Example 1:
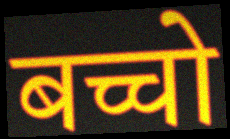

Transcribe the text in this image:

बच्चो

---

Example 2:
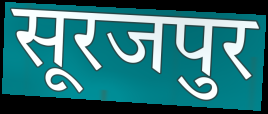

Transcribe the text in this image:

सूरजपुर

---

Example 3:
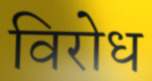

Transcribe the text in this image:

विरोध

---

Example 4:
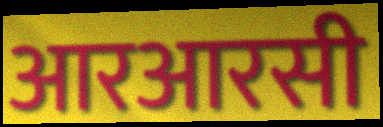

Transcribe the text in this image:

आरआरसी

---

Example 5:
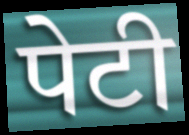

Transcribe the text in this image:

पेटी